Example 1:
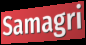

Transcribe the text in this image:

Samagri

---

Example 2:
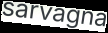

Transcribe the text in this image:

sarvagna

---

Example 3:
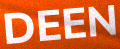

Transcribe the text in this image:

DEEN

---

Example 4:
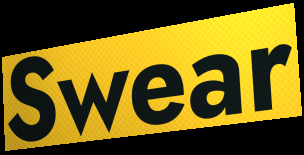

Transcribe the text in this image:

Swear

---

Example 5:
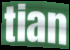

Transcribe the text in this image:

tian